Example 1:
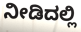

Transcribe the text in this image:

ನೀಡಿದಲ್ಲಿ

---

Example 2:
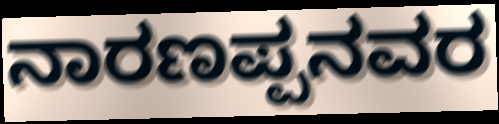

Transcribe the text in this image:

ನಾರಣಪ್ಪನವರ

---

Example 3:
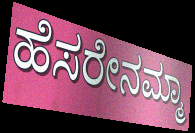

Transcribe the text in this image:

ಹೆಸರೇನಮ್ಮಾ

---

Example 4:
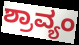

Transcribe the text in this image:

ಶ್ರಾವ್ಯಂ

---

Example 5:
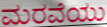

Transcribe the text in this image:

ಮರವೆಯು